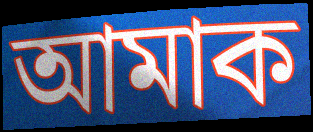
আমাক